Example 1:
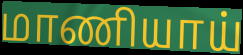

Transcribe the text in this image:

மாணியாய்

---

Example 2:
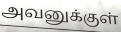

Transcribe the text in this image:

அவனுக்குள்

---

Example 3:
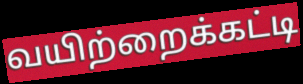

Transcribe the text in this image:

வயிற்றைக்கட்டி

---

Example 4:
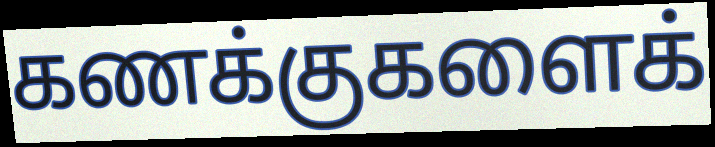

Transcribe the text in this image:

கணக்குகளைக்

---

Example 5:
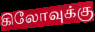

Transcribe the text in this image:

கிலோவுக்கு